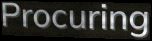
Procuring